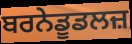
ਬਰਨੇਡੂਡਲਜ਼